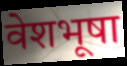
वेशभूषा